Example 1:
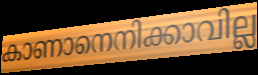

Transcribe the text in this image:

കാണാനെനിക്കാവില്ല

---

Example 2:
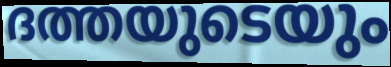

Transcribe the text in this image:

ദത്തയുടെയും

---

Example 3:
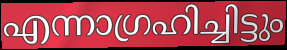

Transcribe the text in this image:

എന്നാഗ്രഹിച്ചിട്ടും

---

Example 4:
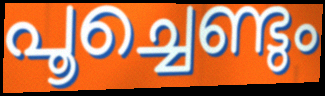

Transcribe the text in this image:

പൂച്ചെണ്ടും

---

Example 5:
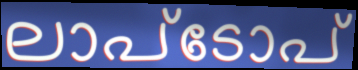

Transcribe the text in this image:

ലാപ്ടോപ്